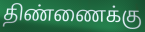
திண்ணைக்கு